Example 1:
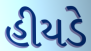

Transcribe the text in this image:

હીયડે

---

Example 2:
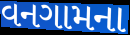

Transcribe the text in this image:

વનગામના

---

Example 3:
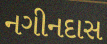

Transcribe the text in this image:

નગીનદાસ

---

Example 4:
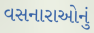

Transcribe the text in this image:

વસનારાઓનું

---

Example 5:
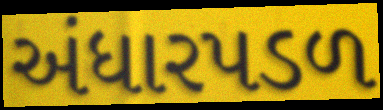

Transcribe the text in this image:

અંધારપડળ